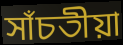
সাঁচতীয়া